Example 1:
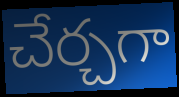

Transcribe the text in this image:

చేర్చగా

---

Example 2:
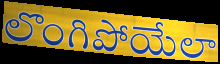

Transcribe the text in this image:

లొంగిపోయేలా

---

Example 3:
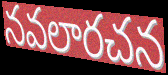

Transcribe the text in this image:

నవలారచన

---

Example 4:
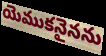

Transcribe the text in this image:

యెముకనైనను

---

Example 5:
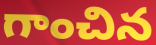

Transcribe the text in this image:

గాంచిన